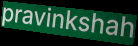
pravinkshah